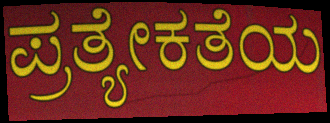
ಪ್ರತ್ಯೇಕತೆಯ